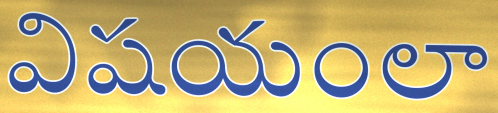
విషయంలా